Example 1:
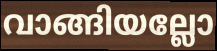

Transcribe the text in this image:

വാങ്ങിയല്ലോ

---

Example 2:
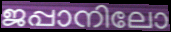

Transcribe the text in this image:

ജപ്പാനിലോ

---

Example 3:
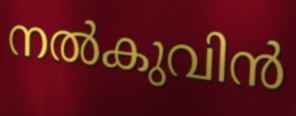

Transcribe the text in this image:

നൽകുവിൻ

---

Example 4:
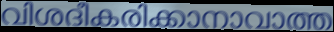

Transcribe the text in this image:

വിശദീകരിക്കാനാവാത്ത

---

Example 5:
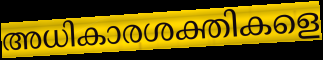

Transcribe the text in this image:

അധികാരശക്തികളെ